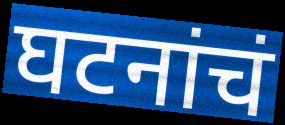
घटनांचं